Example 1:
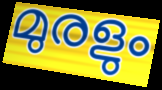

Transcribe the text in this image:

മുരളും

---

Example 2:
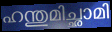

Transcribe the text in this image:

ഹന്തുമിച്ഛാമി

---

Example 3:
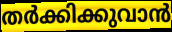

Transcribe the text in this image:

തർക്കിക്കുവാൻ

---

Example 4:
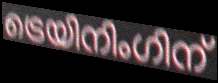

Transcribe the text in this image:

ട്രെയിനിംഗിന്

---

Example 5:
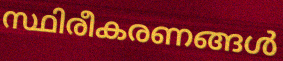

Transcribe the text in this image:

സ്ഥിരീകരണങ്ങൾ